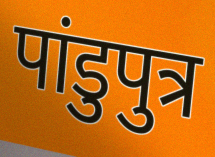
पांडुपुत्र